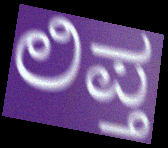
ಲಿಪ್ತ